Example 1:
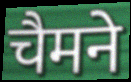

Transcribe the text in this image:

चैमने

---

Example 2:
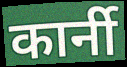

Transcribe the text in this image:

कार्नी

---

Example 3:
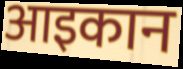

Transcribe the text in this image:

आइकान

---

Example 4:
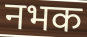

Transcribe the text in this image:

नभक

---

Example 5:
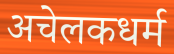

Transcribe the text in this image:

अचेलकधर्म